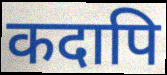
कदापि